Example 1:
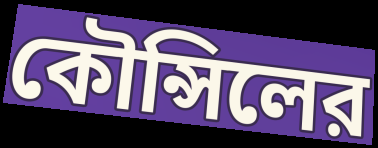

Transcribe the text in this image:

কৌন্সিলের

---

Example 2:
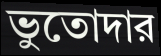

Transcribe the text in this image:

ভুতোদার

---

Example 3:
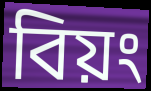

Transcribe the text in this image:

বিয়ং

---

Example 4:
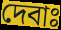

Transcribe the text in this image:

দেবাঃ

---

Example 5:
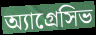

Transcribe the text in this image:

অ্যাগ্রেসিভ